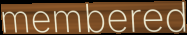
membered